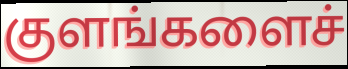
குளங்களைச்